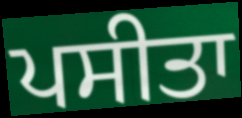
ਪਸੀਤਾ